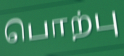
பொற்பு